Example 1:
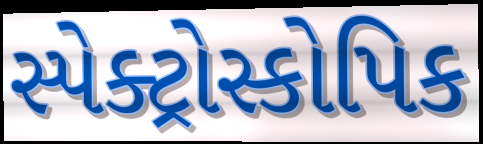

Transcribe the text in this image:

સ્પેક્ટ્રોસ્કોપિક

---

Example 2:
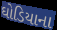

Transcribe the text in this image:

ઘોડિયાના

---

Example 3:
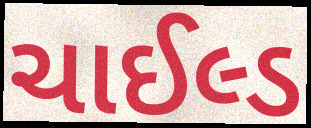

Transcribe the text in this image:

ચાઈલ્ડ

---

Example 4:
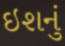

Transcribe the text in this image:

ઇશનું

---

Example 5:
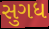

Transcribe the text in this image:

સુગધ